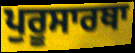
ਪੁਰੂਸਾਰਥਾ